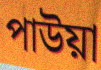
পাউয়া